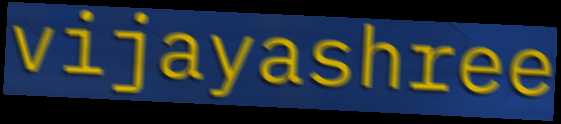
vijayashree